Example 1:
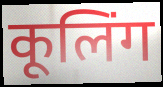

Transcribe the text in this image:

कूलिंग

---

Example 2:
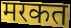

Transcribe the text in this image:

मरकत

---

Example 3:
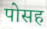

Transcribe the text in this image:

पोसह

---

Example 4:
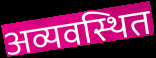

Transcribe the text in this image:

अव्यवस्थित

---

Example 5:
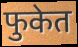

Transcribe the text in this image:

फुकेत